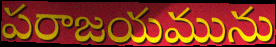
పరాజయమును